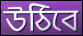
উঠিবে